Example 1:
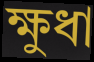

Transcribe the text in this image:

ক্ষুধা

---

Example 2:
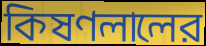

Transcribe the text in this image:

কিষণলালের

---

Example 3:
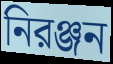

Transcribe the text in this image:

নিরঞ্জন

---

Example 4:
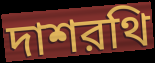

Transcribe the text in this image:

দাশরথি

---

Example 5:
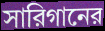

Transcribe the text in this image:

সারিগানের